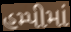
હમ્પીમાં